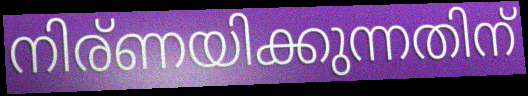
നിര്ണയിക്കുന്നതിന്